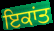
ਇਕਾਂਤ